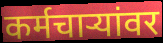
कर्मचार्‍यांवर